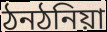
ঠনঠনিয়া